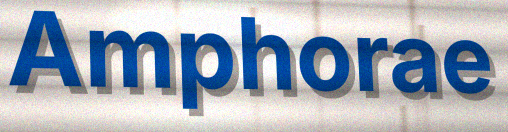
Amphorae